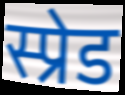
स्प्रेड